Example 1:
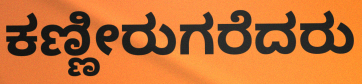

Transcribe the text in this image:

ಕಣ್ಣೀರುಗರೆದರು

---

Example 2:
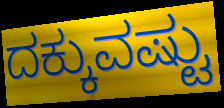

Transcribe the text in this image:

ದಕ್ಕುವಷ್ಟು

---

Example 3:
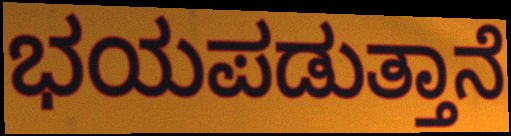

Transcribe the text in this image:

ಭಯಪಡುತ್ತಾನೆ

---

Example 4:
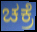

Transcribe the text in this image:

ಚಕ್ರೆ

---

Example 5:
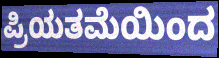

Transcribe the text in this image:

ಪ್ರಿಯತಮೆಯಿಂದ